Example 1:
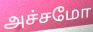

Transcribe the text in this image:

அச்சமோ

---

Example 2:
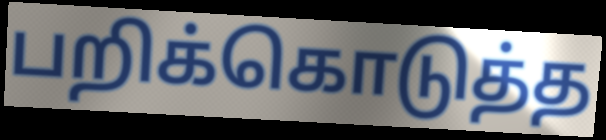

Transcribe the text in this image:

பறிக்கொடுத்த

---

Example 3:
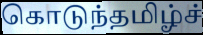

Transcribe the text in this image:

கொடுந்தமிழ்ச்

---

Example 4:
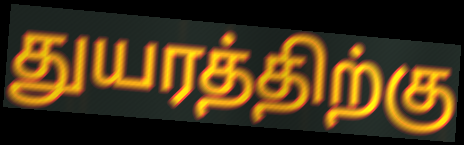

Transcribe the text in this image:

துயரத்திற்கு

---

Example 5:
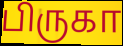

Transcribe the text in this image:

பிருகா